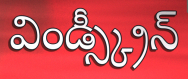
విండ్స్క్రీన్